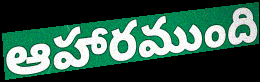
ఆహారముంది